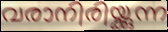
വരാനിരിയ്ക്കുന്ന